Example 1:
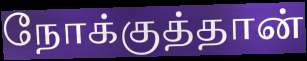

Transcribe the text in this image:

நோக்குத்தான்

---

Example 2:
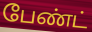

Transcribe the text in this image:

பேண்ட்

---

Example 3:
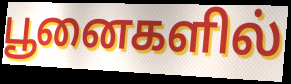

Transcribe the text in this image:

பூனைகளில்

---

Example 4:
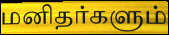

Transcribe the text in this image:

மனிதர்களும்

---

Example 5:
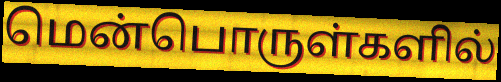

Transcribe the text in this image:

மென்பொருள்களில்